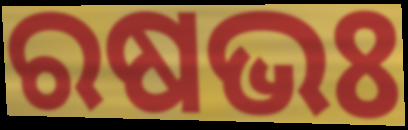
ରଷଭଃ